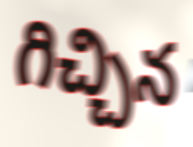
గిచ్చిన